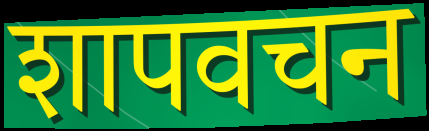
शापवचन